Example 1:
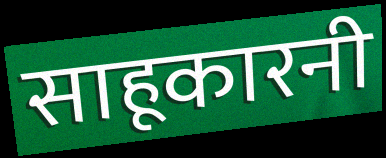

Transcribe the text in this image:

साहूकारनी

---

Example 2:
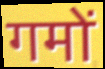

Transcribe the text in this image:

गमों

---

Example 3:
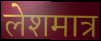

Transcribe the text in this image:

लेशमात्र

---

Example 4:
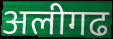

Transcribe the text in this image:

अलीगढ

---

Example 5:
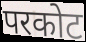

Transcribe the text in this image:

परकोट